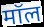
मॉल